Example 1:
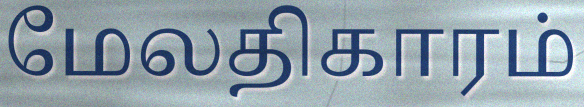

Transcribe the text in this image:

மேலதிகாரம்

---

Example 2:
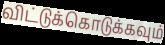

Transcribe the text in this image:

விட்டுக்கொடுக்கவும்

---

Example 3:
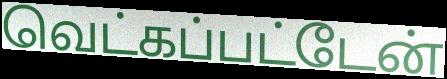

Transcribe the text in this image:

வெட்கப்பட்டேன்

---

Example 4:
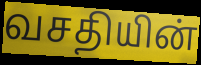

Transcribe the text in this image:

வசதியின்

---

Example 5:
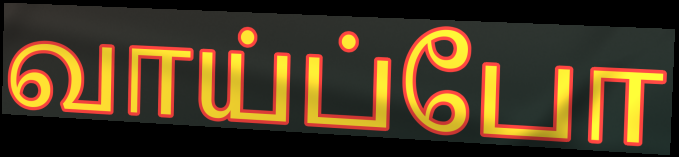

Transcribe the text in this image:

வாய்ப்போ